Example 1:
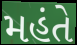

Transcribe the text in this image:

મહંતે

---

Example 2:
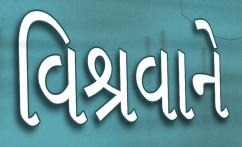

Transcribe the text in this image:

વિશ્રવાને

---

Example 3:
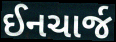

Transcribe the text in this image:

ઈનચાર્જ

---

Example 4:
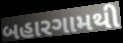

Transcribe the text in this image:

બહારગામથી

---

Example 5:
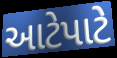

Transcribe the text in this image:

આટેપાટે